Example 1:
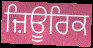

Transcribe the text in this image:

ਜ਼ਿਊਰਿਕ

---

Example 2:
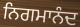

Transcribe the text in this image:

ਨਿਗਮਾਨੰਦ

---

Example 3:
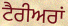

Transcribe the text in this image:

ਟੈਰੀਅਰਾਂ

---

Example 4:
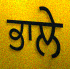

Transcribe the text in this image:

ਭਾਲੇ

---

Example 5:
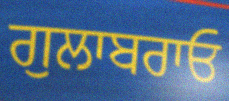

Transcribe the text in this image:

ਗੁਲਾਬਰਾਓ